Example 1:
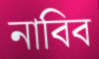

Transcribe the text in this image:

নাবিব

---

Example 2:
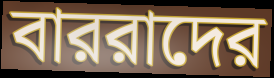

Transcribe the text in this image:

বাররাদের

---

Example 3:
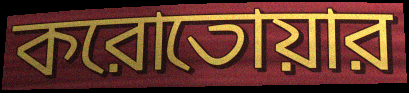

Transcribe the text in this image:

করোতোয়ার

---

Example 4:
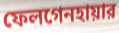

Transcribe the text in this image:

ফেলগেনহায়ার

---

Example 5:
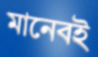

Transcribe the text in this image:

মানেবই